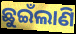
ଛୁଇଁଲାଣି